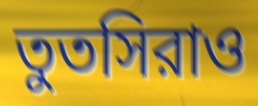
তুতসিরাও